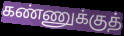
கண்ணுக்குத்